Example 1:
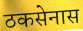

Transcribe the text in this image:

ठकसेनास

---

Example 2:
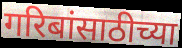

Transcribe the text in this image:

गरिबांसाठीच्या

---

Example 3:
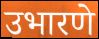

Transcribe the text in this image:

उभारणे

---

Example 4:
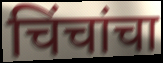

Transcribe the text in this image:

चिंचांचा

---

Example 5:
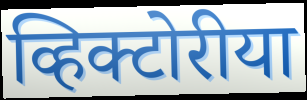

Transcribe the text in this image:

व्हिक्टोरीया